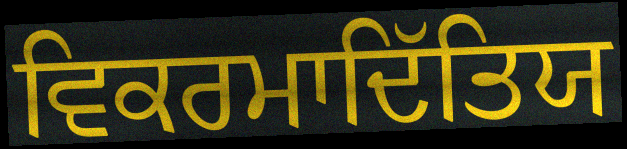
ਵਿਕਰਮਾਦਿੱਤਿਯ